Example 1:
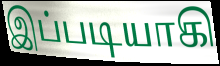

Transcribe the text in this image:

இப்படியாகி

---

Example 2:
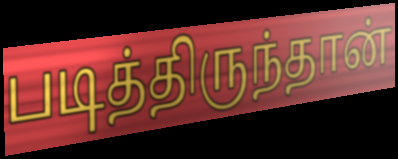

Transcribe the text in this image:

படித்திருந்தான்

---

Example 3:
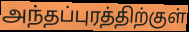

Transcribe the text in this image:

அந்தப்புரத்திற்குள்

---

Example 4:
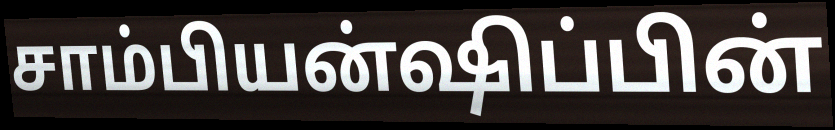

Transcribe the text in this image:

சாம்பியன்ஷிப்பின்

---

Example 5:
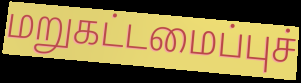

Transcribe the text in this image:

மறுகட்டமைப்புச்